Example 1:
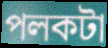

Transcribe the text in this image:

পলকটা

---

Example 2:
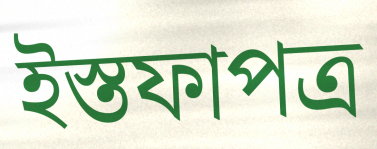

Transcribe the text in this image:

ইস্তফাপত্র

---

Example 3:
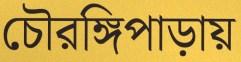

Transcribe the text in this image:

চৌরঙ্গিপাড়ায়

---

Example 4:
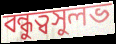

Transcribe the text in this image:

বন্ধুত্বসুলভ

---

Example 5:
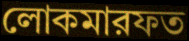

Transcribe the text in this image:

লোকমারফত